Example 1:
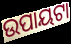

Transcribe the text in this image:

ଉପାୟଟା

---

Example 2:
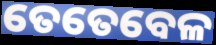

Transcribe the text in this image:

ତେତେବେଳ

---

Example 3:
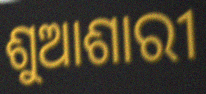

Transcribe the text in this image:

ଶୁଆଶାରୀ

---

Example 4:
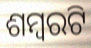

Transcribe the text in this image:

ଶମ୍ବରଟି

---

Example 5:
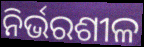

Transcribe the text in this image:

ନିର୍ଭରଶୀଳ